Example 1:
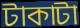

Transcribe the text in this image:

টাকাটা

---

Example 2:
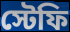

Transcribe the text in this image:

স্টেফি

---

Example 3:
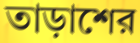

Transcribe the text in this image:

তাড়াশের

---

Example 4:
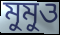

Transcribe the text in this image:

মুমুও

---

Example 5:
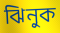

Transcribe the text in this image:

ঝিনুক